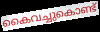
കൈവച്ചുകൊണ്ട്